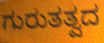
ಗುರುತತ್ವದ